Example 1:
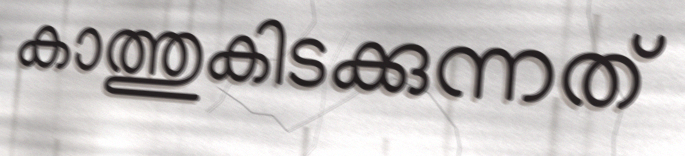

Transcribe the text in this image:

കാത്തുകിടക്കുന്നത്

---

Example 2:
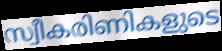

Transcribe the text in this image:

സ്വീകരിണികളുടെ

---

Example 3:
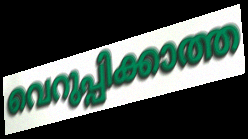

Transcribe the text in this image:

വെറുപ്പിക്കാത്ത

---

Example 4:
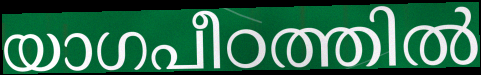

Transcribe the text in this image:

യാഗപീഠത്തിൽ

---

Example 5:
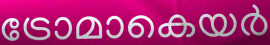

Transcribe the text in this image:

ട്രോമാകെയർ